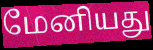
மேனியது